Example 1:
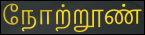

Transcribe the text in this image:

நோற்றூண்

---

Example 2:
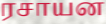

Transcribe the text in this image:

ரசாயன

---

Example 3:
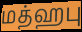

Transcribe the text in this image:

மத்ஹபு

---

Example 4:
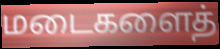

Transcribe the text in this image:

மடைகளைத்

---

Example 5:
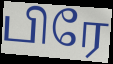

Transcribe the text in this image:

பிரே